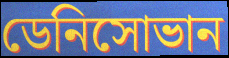
ডেনিসোভান